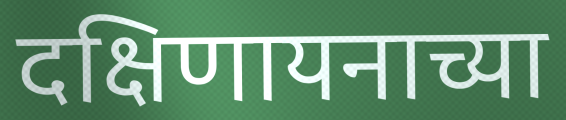
दक्षिणायनाच्या